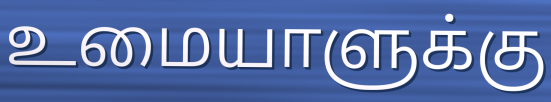
உமையாளுக்கு